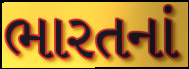
ભારતનાં